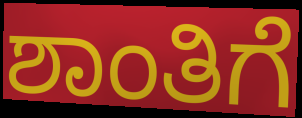
ಶಾಂತಿಗೆ